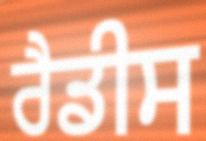
ਰੈਡੀਸ